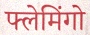
फ्लेमिंगो